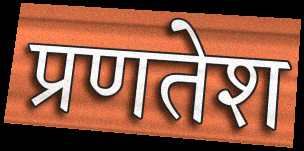
प्रणतेश